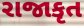
રાજાકૃત